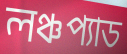
লঞ্চপ্যাড